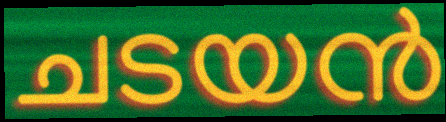
ചടയൻ